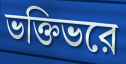
ভক্তিভরে